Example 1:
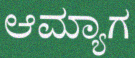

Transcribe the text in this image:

ಆಮ್ಯಾಗ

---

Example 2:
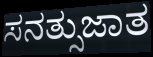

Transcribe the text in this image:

ಸನತ್ಸುಜಾತ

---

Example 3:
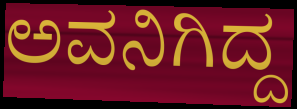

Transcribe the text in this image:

ಅವನಿಗಿದ್ದ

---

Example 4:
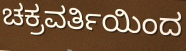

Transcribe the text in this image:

ಚಕ್ರವರ್ತಿಯಿಂದ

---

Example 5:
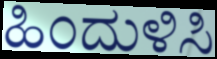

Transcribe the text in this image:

ಹಿಂದುಳಿಸಿ